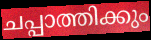
ചപ്പാത്തിക്കും